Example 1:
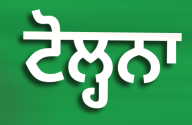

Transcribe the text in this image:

ਟੋਲ੍ਹਨਾ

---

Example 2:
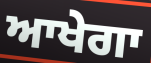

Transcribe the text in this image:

ਆਖੇਗਾ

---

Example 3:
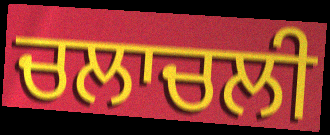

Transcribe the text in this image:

ਚਲਾਚਲੀ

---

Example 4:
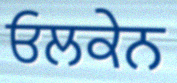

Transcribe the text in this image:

ਓਲਕੇਨ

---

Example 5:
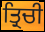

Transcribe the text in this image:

ਤ੍ਰਿਚੀ